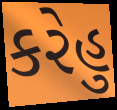
કરેહુ